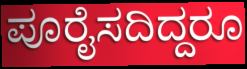
ಪೂರೈಸದಿದ್ದರೂ